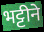
भट्टीने